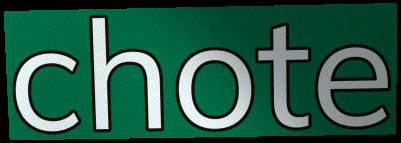
chote